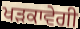
ਖੜਕਾਵੇਗੀ